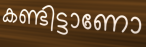
കണ്ടിട്ടാണോ